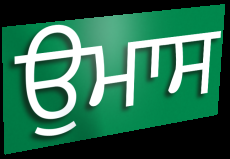
ਉਮਾਸ